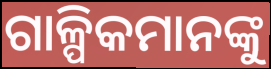
ଗାଳ୍ପିକମାନଙ୍କୁ